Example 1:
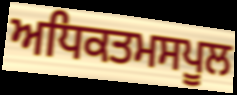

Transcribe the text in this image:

ਅਧਿਕਤਮਸਪੂਲ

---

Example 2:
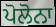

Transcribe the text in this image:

ਪੋਲੋਨਾ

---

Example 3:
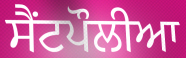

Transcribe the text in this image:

ਸੈਂਟਪੌਲੀਆ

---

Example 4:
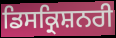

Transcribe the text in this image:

ਡਿਸਕ੍ਰਿਸ਼ਨਰੀ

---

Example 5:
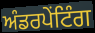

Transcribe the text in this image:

ਅੰਡਰਪੇਂਟਿੰਗ